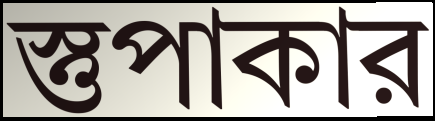
স্তুপাকার